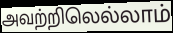
அவற்றிலெல்லாம்